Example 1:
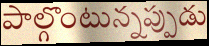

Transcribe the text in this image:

పాల్గొంటున్నప్పుడు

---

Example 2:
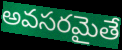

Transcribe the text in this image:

అవసరమైతే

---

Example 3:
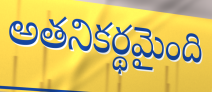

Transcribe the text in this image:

అతనికర్థమైంది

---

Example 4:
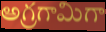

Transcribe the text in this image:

అగ్రగామిగా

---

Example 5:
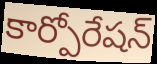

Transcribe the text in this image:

కార్పోరేషన్